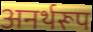
अनर्थरूप